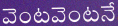
వెంటవెంటనే